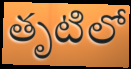
తృటిలో